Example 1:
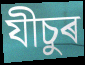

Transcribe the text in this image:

যীচুৰ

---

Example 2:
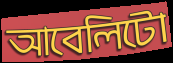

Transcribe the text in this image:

আবেলিটো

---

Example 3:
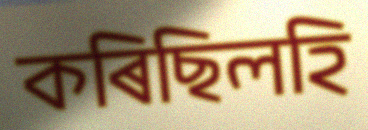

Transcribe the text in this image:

কৰিছিলহি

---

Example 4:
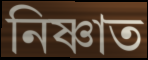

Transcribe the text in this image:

নিষ্ণাত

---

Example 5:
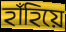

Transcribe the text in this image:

হাঁহিয়ে